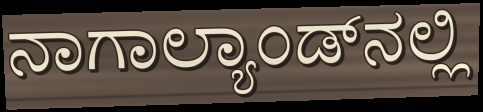
ನಾಗಾಲ್ಯಾಂಡ್‌ನಲ್ಲಿ